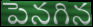
పెనగిన